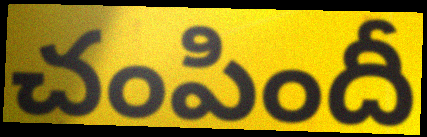
చంపిందీ